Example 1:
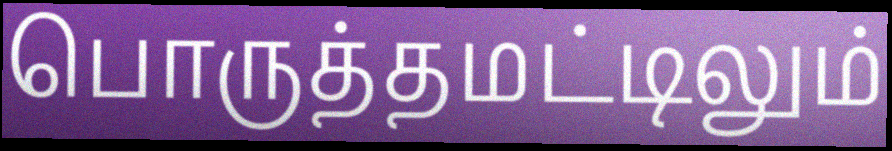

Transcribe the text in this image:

பொருத்தமட்டிலும்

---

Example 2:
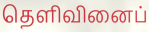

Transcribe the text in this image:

தெளிவினைப்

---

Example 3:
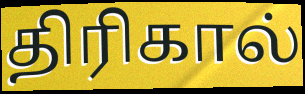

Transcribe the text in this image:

திரிகால்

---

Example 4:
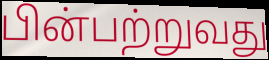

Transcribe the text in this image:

பின்பற்றுவது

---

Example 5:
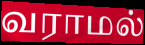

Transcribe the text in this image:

வராமல்